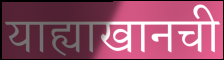
याह्याखानची